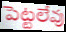
పెట్టలేవు